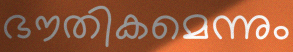
ഭൗതികമെന്നും